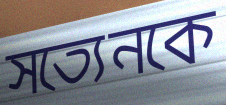
সত্যেনকে